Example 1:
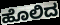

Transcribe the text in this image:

ಹೊಲಿದ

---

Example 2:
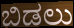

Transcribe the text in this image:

ಬಿಡಲು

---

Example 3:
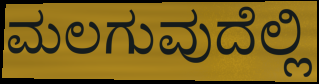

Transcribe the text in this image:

ಮಲಗುವುದೆಲ್ಲಿ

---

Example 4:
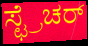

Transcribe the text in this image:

ಸ್ಟ್ರೆಚರ್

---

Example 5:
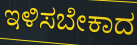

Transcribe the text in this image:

ಇಳಿಸಬೇಕಾದ